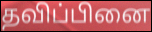
தவிப்பினை